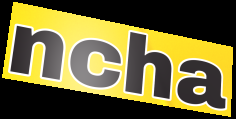
ncha